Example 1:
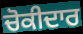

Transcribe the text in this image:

ਚੋਕੀਦਾਰ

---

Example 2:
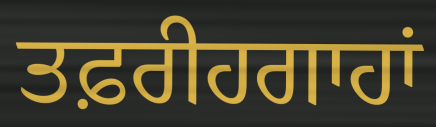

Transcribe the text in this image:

ਤਫ਼ਰੀਹਗਾਹਾਂ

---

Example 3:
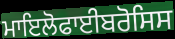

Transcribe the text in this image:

ਮਾਇਲੋਫਾਈਬਰੋਸਿਸ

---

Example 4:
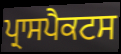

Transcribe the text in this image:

ਪ੍ਰਾਸਪੈਕਟਸ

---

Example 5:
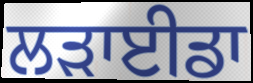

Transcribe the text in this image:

ਲੜਾਈਡਾ